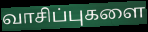
வாசிப்புகளை